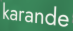
karande